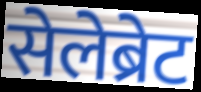
सेलेब्रेट